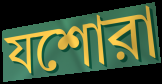
যশোরা